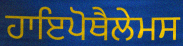
ਹਾਇਪੋਥੈਲੇਮਸ